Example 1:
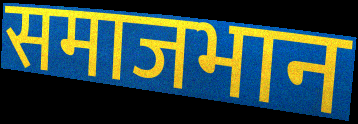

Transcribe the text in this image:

समाजभान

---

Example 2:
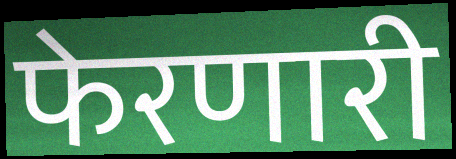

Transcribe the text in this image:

फेरणारी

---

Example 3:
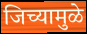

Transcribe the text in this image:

जिच्यामुळे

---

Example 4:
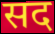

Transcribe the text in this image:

सद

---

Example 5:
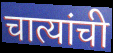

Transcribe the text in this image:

चात्यांची